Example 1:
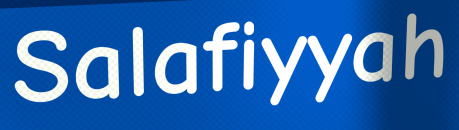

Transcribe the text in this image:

Salafiyyah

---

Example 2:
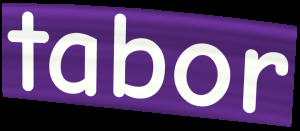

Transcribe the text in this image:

tabor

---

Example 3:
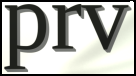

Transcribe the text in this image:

prv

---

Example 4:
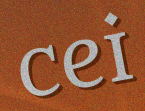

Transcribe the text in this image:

cei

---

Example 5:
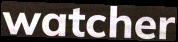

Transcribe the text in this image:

watcher